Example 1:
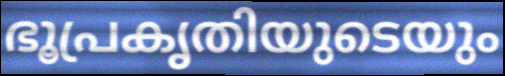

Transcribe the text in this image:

ഭൂപ്രകൃതിയുടെയും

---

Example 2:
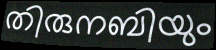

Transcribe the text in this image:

തിരുനബിയും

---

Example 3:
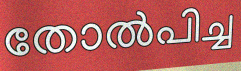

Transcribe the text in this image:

തോൽപിച്ച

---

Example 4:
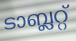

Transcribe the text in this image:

ടാബ്ലറ്റ്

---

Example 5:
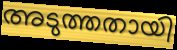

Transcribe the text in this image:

അടുത്തതായി